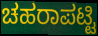
ಚಹರಾಪಟ್ಟಿ